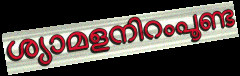
ശ്യാമളനിറംപൂണ്ട